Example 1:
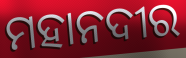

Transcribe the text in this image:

ମହାନଦୀର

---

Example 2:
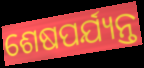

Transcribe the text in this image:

ଶେଷପର୍ଯ୍ୟନ୍ତ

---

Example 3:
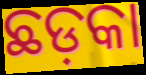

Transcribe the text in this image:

ଛଡ଼କା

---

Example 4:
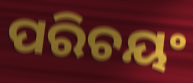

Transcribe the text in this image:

ପରିଚୟଂ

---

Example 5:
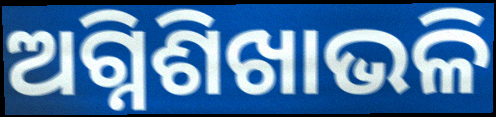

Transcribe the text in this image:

ଅଗ୍ନିଶିଖାଭଳି